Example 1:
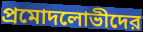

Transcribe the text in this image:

প্রমোদলোভীদের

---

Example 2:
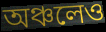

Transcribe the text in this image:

অঞ্চলেও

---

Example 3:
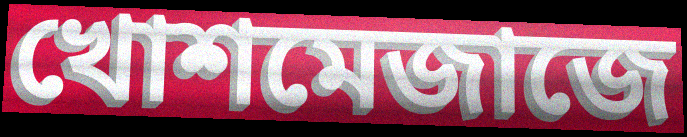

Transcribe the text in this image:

খোশমেজাজে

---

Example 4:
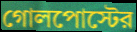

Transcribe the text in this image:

গোলপোস্টের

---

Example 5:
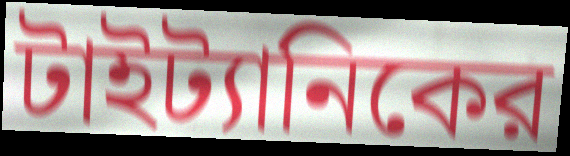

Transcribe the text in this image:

টাইট্যানিকের